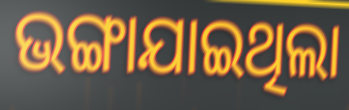
ଭଙ୍ଗାଯାଇଥିଲା